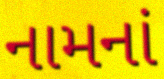
નામનાં